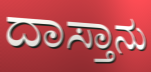
ದಾಸ್ತಾನು